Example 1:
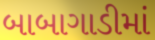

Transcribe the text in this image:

બાબાગાડીમાં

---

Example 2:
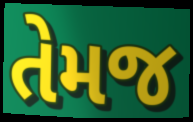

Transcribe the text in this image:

તેમજ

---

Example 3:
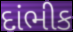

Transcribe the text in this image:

દાંભીક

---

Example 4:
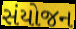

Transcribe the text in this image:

સંયોજન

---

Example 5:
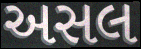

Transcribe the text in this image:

અસલ